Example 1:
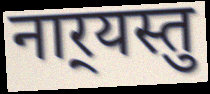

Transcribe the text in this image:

नार्यस्तु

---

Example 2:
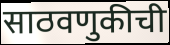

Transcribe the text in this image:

साठवणुकीची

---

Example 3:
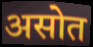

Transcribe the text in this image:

असोत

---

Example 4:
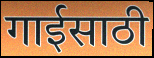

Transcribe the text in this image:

गाईसाठी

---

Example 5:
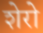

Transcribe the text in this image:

शेरो